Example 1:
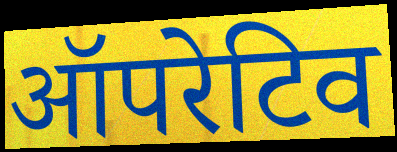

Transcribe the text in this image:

ऑपरेटिव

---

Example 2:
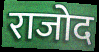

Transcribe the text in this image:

राजोद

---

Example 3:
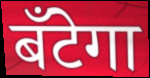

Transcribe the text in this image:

बँटेगा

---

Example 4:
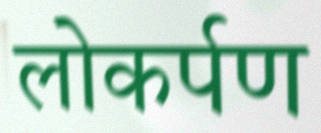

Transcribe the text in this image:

लोकर्पण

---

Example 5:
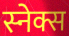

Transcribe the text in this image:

स्नेक्स